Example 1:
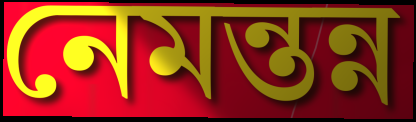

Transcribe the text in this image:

নেমন্তন্ন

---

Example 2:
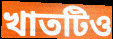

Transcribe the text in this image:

খাতটিও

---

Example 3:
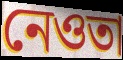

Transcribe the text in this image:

নেওতা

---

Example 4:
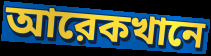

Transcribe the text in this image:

আরেকখানে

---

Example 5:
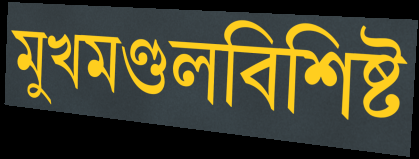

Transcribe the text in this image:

মুখমণ্ডলবিশিষ্ট